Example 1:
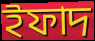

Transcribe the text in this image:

ইফাদ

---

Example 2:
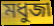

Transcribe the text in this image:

মধুজা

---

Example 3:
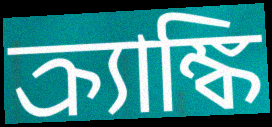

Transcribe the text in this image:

ক্র্যাঙ্কি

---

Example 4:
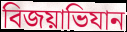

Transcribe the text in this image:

বিজয়াভিযান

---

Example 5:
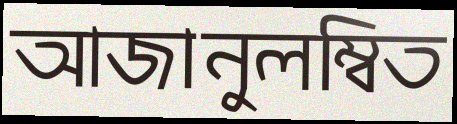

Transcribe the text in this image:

আজানুলম্বিত